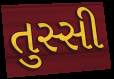
તુસ્સી